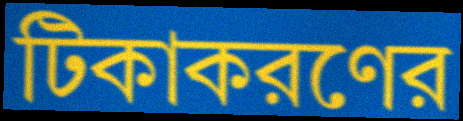
টিকাকরণের